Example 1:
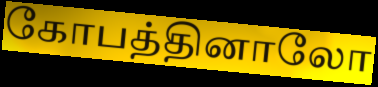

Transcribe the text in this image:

கோபத்தினாலோ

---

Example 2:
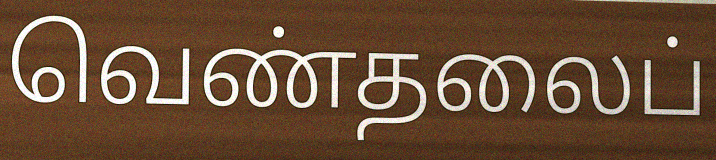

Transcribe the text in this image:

வெண்தலைப்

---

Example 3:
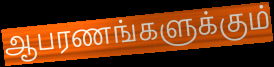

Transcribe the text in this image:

ஆபரணங்களுக்கும்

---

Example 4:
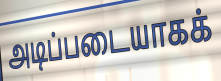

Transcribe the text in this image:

அடிப்படையாகக்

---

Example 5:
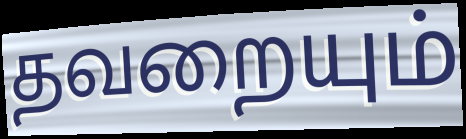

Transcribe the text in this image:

தவறையும்